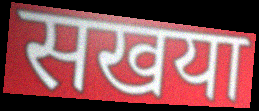
सखया